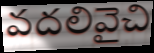
వదలివైచి